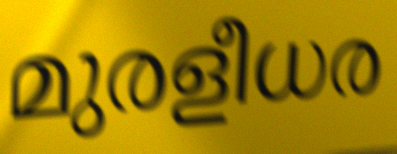
മുരളീധര